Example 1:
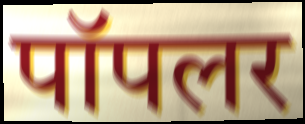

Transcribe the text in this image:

पॉपलर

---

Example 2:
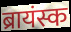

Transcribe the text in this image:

ब्रायंस्क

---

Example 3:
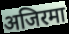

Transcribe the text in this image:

अजिरमा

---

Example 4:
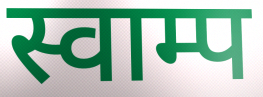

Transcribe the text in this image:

स्वाम्प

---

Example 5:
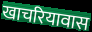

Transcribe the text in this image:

खाचरियावास